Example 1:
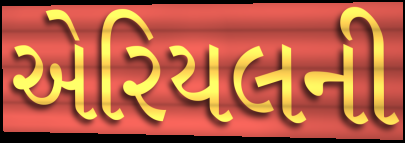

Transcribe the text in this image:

એરિયલની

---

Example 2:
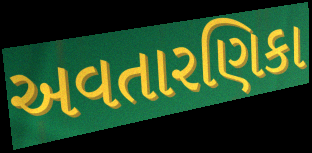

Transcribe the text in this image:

અવતારણિકા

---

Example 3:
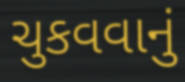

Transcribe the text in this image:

ચુકવવાનું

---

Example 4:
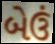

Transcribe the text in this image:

બેઉં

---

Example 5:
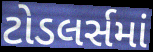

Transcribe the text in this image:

ટોડલર્સમાં